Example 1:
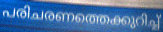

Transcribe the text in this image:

പരിചരണത്തെക്കുറിച്ച്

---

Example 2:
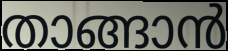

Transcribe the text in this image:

താങ്ങാൻ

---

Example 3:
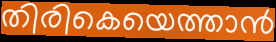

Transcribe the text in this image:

തിരികെയെത്താൻ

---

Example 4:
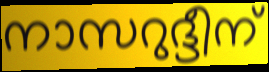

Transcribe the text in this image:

നാസറുദ്ദീന്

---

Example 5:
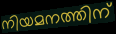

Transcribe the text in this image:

നിയമനത്തിന്